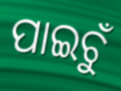
ପାଇଚୁଁ